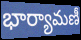
భార్యామణీ